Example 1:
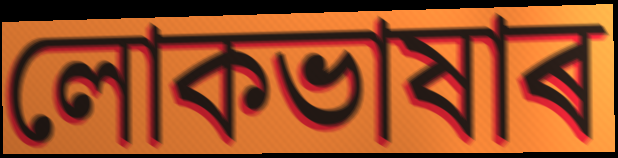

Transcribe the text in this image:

লোকভাষাৰ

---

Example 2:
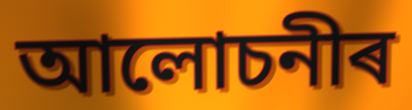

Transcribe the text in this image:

আলোচনীৰ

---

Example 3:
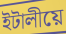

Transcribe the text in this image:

ইটালীয়ে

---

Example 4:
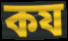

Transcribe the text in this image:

কয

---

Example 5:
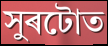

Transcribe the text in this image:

সুৰটোত